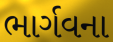
ભાર્ગવના